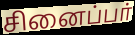
சினைப்பர்